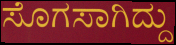
ಸೊಗಸಾಗಿದ್ದು